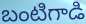
బంటిగాడి